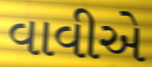
વાવીએ